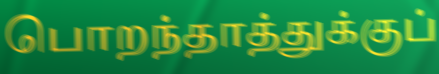
பொறந்தாத்துக்குப்